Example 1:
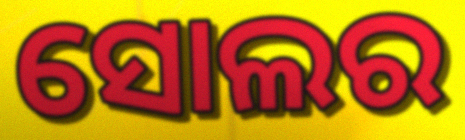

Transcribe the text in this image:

ସୋଲର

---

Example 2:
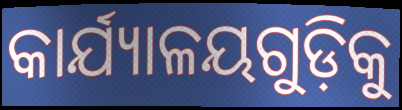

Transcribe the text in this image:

କାର୍ଯ୍ୟାଳୟଗୁଡ଼ିକୁ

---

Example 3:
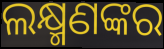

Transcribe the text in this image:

ଲକ୍ଷ୍ମଣଙ୍କର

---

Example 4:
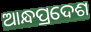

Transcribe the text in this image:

ଆନ୍ଧପ୍ରଦେଶ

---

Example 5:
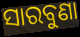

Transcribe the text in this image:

ସାରବୁଣା